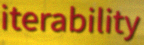
iterability